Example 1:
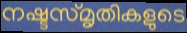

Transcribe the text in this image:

നഷ്ടസ്മൃതികളുടെ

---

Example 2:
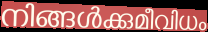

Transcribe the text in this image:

നിങ്ങൾക്കുമീവിധം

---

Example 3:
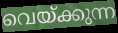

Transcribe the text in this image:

വെയ്ക്കുന്ന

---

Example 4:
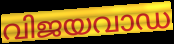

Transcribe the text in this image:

വിജയവാഡ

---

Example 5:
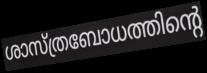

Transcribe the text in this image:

ശാസ്ത്രബോധത്തിന്റെ